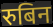
रुबिन